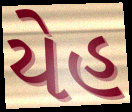
યેહ